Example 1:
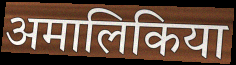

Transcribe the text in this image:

अमालिकिया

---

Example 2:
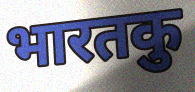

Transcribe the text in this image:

भारतकु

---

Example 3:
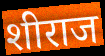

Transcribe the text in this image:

शीराज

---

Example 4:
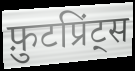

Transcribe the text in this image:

फ़ुटप्रिंट्स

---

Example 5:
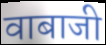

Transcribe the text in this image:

वाबाजी